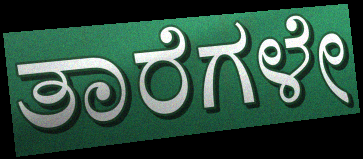
ತಾರೆಗಳೇ